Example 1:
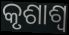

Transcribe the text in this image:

କୃଶାଶ୍ୱ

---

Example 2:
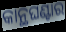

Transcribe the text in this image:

କାନ୍ଥଘଣ୍ଟାର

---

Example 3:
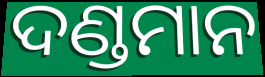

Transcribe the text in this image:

ଦଣ୍ଡମାନ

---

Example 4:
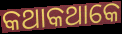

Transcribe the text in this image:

କଥାକଥାକେ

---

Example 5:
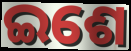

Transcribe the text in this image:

ଇଶେ